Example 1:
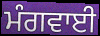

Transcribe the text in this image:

ਮੰਗਵਾਈ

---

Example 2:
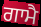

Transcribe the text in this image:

ਗਾਮੈ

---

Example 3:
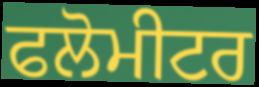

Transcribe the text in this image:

ਫਲੋਮੀਟਰ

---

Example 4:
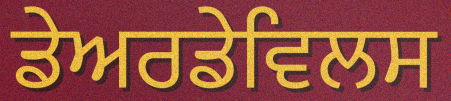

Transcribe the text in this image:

ਡੇਅਰਡੇਵਿਲਸ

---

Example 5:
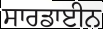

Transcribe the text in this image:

ਸਾਰਡਾਈਨ